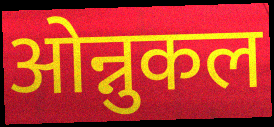
ओन्नुकल